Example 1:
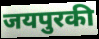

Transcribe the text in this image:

जयपुरकी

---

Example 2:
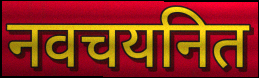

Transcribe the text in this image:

नवचयनित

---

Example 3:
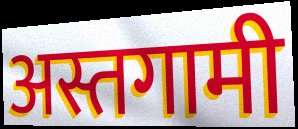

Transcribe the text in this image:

अस्तगामी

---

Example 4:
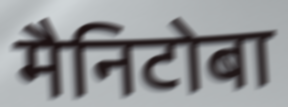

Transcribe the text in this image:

मैनिटोबा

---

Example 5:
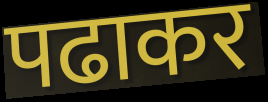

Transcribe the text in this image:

पढाकर